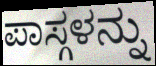
ಪಾಸ್ಗಳನ್ನು